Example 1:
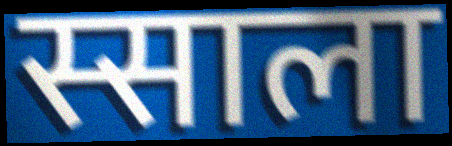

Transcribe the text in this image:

स्साला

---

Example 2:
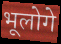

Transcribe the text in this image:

भूलोगे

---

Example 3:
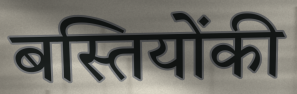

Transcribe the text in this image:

बस्तियोंकी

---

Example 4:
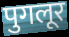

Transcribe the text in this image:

पुगलूर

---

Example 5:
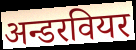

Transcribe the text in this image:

अन्डरवियर